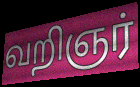
வறிஞர்